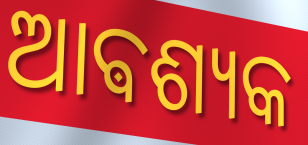
ଆଵଶ୍ୟକ